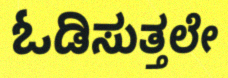
ಓಡಿಸುತ್ತಲೇ